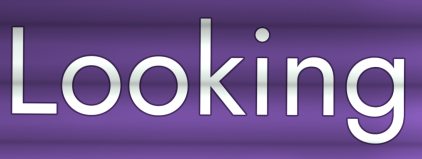
Looking